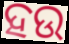
ହଉ